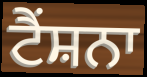
ਟੈਂਸ਼ਨਾ